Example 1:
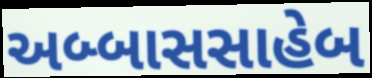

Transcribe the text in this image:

અબ્બાસસાહેબ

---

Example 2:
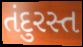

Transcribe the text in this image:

તંદુરસ્ત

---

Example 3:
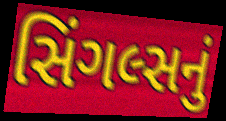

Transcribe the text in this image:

સિંગલ્સનું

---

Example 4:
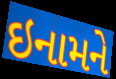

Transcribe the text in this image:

ઇનામને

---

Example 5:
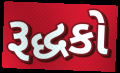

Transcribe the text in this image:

રૂદ્ધકો